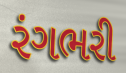
રંગભરી